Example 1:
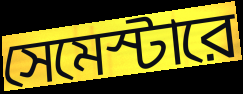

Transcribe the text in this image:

সেমেস্টারে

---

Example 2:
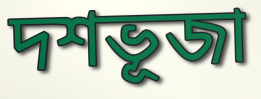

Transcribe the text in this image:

দশভূজা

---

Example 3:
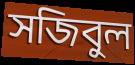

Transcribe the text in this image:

সজিবুল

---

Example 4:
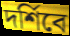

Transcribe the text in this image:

দর্শিবে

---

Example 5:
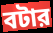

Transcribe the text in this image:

বটার